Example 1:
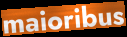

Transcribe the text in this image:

maioribus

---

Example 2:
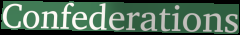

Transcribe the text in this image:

Confederations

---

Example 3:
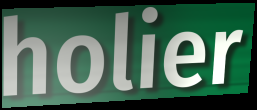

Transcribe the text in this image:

holier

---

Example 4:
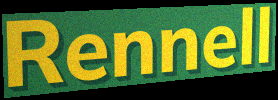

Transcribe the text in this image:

Rennell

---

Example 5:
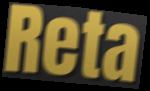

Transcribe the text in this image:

Reta